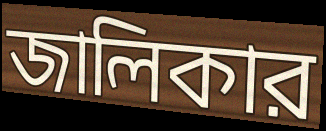
জালিকার